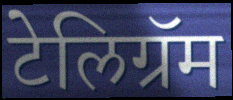
टेलिग्रॅम